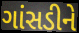
ગાંસડીને